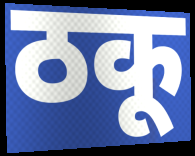
ठकू